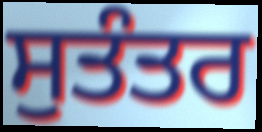
ਸੁਤੰਤਰ